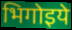
भिगोइये